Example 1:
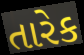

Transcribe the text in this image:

તારેક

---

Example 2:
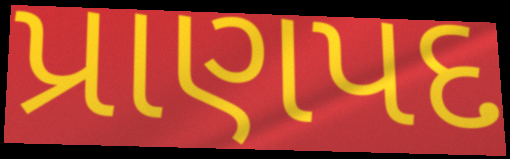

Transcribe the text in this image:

પ્રાણપદ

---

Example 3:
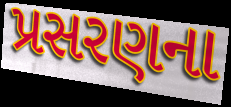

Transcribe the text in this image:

પ્રસરણના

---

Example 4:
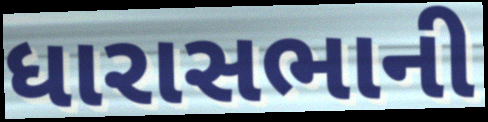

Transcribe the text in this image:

ધારાસભાની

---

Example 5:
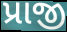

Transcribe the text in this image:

પ્રાજી